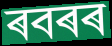
ৰবৰৰ